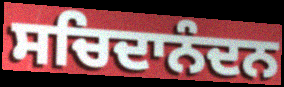
ਸਚਿਦਾਨੰਦਨ